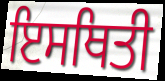
ਇਸਥਿਤੀ